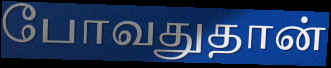
போவதுதான்